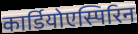
कार्डियोएस्पिरिन